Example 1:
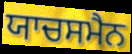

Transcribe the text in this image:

ਯਾਚਸਮੈਨ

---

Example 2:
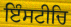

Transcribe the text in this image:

ਇੰਸਟੀਚਿ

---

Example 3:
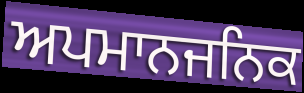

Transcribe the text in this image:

ਅਪਮਾਨਜਨਿਕ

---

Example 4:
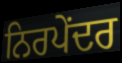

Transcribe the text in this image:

ਨਿਰਪੇਂਦਰ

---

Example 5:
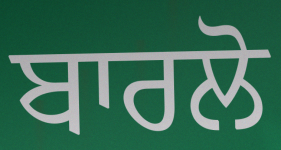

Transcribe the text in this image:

ਬਾਰਲੋ